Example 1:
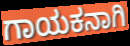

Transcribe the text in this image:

ಗಾಯಕನಾಗಿ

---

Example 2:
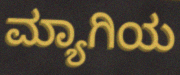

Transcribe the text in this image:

ಮ್ಯಾಗಿಯ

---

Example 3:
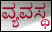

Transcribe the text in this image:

ವ್ಯವಸ್ಥ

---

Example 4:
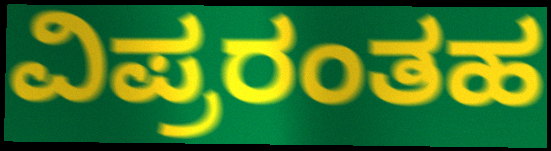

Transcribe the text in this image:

ವಿಪ್ರರಂತಹ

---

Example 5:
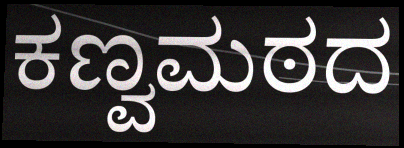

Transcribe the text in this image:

ಕಣ್ವಮಠದ